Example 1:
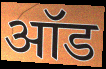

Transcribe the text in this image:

ऑड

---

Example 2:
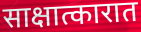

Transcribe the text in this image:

साक्षात्कारात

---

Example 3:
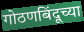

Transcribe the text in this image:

गोठणबिंदूच्या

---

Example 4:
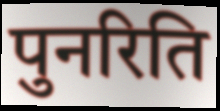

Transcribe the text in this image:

पुनरिति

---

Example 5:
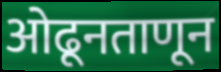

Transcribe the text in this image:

ओढूनताणून